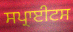
ਸਪ੍ਰਾਈਟਸ